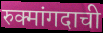
रुक्मांगदाची